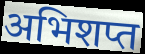
अभिशप्त